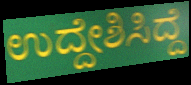
ಉದ್ದೇಶಿಸಿದ್ದೆ